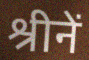
श्रीनें